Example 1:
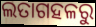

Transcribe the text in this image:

ଲତାଗହଳରୁ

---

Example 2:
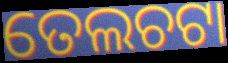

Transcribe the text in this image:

ତେଲଚଟା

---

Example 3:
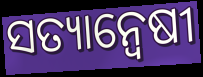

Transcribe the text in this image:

ସତ୍ୟାନ୍ଵେଷୀ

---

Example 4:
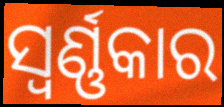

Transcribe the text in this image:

ସ୍ୱର୍ଣ୍ଣକାର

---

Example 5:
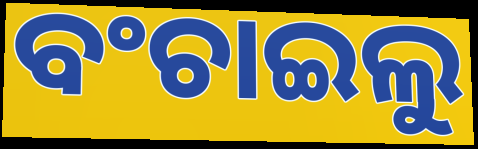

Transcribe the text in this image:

ବଂଚାଇଲୁ